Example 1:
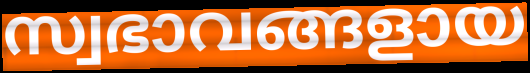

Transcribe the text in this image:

സ്വഭാവങ്ങളായ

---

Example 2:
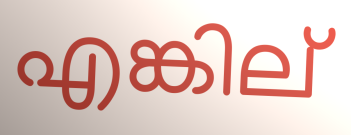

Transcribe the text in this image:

എങ്കില്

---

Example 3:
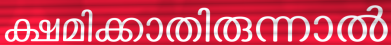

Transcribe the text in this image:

ക്ഷമിക്കാതിരുന്നാൽ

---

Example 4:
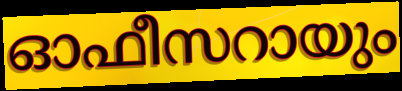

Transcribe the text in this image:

ഓഫീസറായും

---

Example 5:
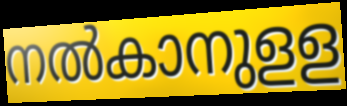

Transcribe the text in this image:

നൽകാനുളള